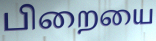
பிறையை